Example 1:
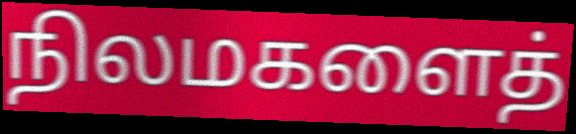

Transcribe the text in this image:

நிலமகளைத்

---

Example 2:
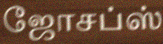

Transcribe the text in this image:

ஜோசப்ஸ்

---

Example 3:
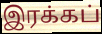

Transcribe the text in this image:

இரக்கப்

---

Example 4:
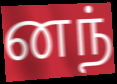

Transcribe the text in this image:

னந்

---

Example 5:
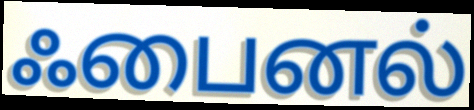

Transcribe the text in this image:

ஃபைனல்